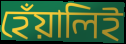
হেঁয়ালিই